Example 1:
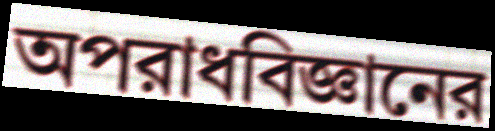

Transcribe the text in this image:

অপরাধবিজ্ঞানের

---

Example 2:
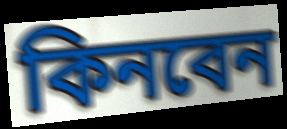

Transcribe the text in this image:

কিনবেন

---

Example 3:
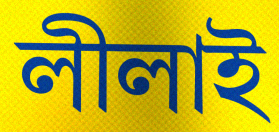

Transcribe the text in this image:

লীলাই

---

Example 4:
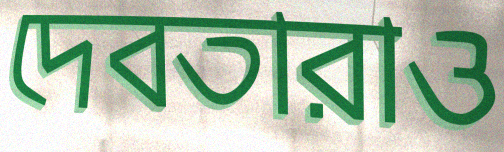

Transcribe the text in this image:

দেবতারাও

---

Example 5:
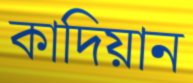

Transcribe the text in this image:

কাদিয়ান